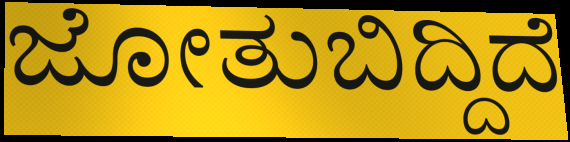
ಜೋತುಬಿದ್ದಿದೆ